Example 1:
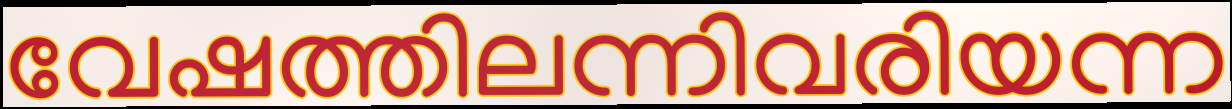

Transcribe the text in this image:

വേഷത്തിലന്നിവരിയന്ന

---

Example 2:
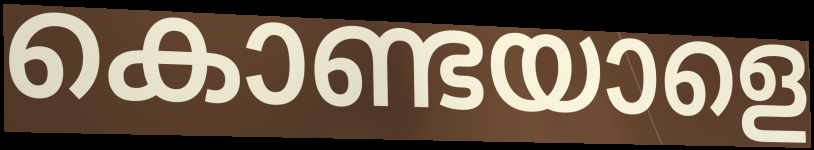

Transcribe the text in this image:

കൊണ്ടയാളെ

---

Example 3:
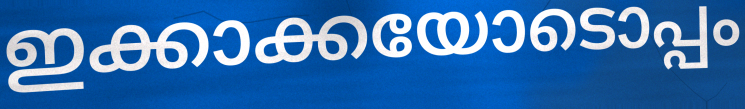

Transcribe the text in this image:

ഇക്കാക്കയോടൊപ്പം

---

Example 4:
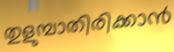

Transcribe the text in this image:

തുളുമ്പാതിരിക്കാൻ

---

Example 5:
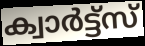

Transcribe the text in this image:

ക്വാർട്ട്സ്